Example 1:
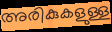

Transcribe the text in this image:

അരികുകളുള്ള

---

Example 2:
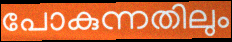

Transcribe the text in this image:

പോകുന്നതിലും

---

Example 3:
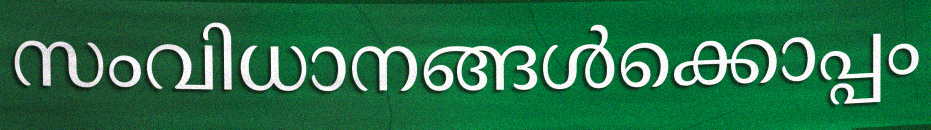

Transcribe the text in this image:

സംവിധാനങ്ങൾക്കൊപ്പം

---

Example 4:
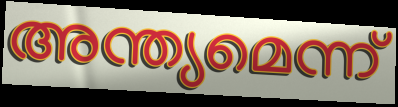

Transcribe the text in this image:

അന്ത്യമെന്ന്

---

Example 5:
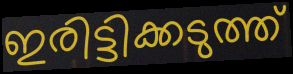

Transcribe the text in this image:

ഇരിട്ടിക്കടുത്ത്